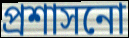
প্ৰশাসনো